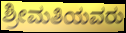
ಶ್ರೀಮತಿಯವರು